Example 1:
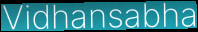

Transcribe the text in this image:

Vidhansabha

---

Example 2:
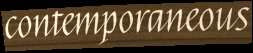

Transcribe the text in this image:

contemporaneous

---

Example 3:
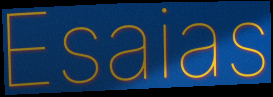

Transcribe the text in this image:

Esaias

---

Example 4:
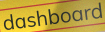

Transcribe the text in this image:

dashboard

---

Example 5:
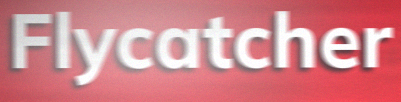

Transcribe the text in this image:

Flycatcher